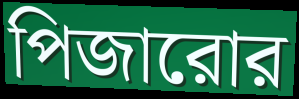
পিজারোর